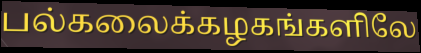
பல்கலைக்கழகங்களிலே